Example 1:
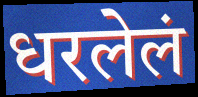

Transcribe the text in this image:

धरलेलं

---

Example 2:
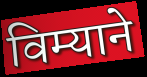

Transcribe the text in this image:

विम्याने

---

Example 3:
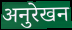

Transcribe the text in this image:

अनुरेखन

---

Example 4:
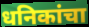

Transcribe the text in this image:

धनिकांचा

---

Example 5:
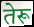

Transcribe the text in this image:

तेरू